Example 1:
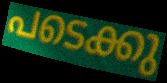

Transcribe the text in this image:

പടെക്കു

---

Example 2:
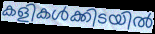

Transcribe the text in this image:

കളികൾക്കിടയിൽ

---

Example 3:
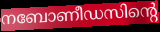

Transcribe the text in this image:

നബോണീഡസിന്റെ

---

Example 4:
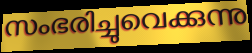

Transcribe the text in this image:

സംഭരിച്ചുവെക്കുന്നു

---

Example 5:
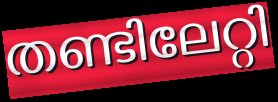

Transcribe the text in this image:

തണ്ടിലേറ്റി